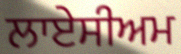
ਲਾਏਸੀਅਮ